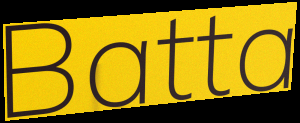
Batta